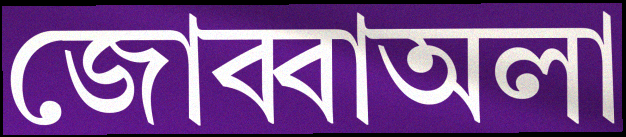
জোব্বাঅলা